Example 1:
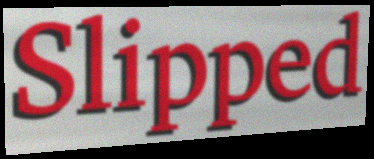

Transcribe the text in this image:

Slipped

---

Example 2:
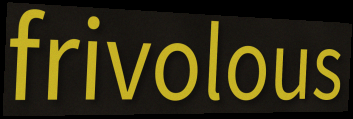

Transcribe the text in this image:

frivolous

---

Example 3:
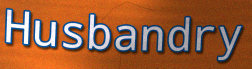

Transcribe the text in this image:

Husbandry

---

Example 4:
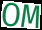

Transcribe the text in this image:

OM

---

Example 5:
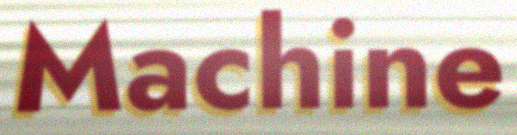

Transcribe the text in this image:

Machine